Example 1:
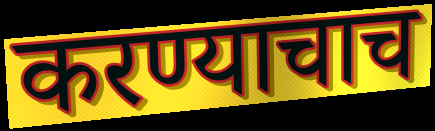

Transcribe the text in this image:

करण्याचाच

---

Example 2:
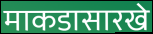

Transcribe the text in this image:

माकडासारखे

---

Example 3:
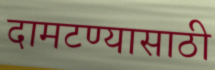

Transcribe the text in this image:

दामटण्यासाठी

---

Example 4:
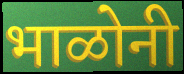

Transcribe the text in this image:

भाळोनी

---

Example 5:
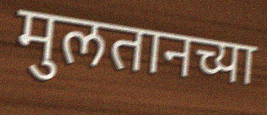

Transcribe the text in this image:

मुलतानच्या